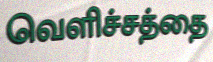
வெளிச்சத்தை